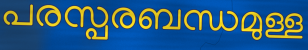
പരസ്പരബന്ധമുള്ള